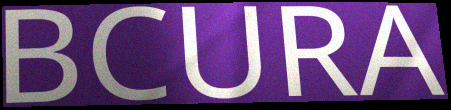
BCURA